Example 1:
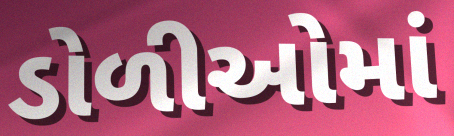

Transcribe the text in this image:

ડોળીઓમાં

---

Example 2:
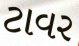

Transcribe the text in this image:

ટાવર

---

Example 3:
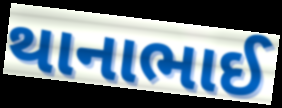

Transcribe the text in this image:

થાનાભાઈ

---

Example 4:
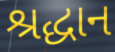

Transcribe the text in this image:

શ્રદ્ધાન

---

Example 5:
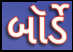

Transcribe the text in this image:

બૉર્ડે